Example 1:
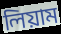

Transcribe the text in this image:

লিয়াম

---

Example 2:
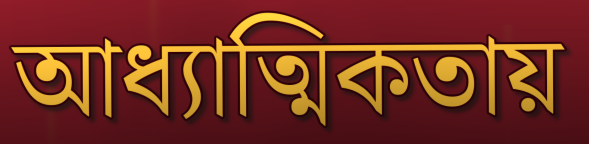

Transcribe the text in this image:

আধ্যাত্মিকতায়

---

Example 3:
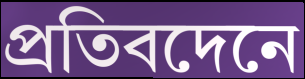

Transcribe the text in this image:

প্রতিবদেনে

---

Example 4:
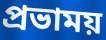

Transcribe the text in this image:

প্রভাময়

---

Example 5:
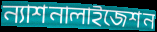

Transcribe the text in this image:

ন্যাশনালাইজেশন